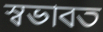
স্বভাবত